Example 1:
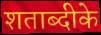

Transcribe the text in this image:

शताब्दीके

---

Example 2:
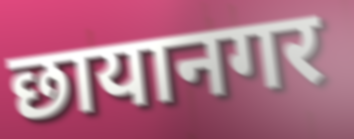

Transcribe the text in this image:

छायानगर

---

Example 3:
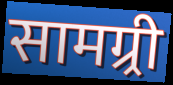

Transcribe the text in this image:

सामग्र्री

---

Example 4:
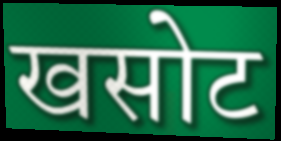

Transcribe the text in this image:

खसोट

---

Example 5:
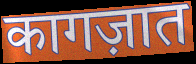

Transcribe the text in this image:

कागज़ात